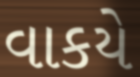
વાકયે